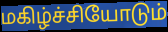
மகிழ்ச்சியோடும்